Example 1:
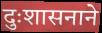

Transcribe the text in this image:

दुःशासनाने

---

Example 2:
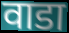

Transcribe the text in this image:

वाडा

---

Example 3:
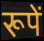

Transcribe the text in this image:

रूपें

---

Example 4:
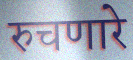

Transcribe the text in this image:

रुचणारे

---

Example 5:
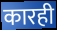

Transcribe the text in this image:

कारही